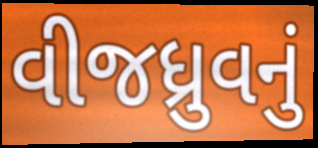
વીજધ્રુવનું